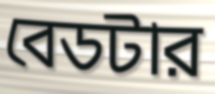
বেডটার